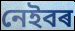
নেইবৰ